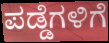
ಪಡ್ಡೆಗಳಿಗೆ